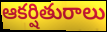
ఆకర్షితురాలు